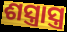
ଶସ୍ତ୍ରାସ୍ତ୍ର